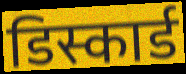
डिस्कार्ड